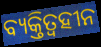
ବ୍ୟକ୍ତିତ୍ୱହୀନ